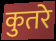
कुतरे